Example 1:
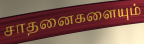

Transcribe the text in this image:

சாதனைகளையும்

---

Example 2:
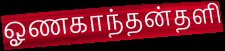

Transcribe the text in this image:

ஓணகாந்தன்தளி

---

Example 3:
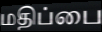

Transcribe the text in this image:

மதிப்பை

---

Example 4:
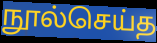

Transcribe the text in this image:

நூல்செய்த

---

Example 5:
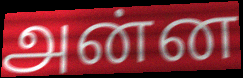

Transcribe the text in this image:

அன்ன